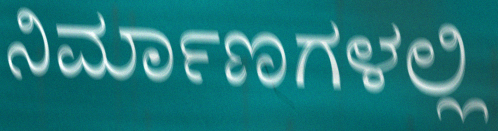
ನಿರ್ಮಾಣಗಳಲ್ಲಿ